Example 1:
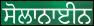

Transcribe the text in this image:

ਸੋਲਾਨਾਈਨ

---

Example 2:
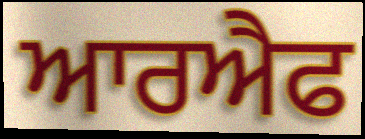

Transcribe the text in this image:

ਆਰਐਫ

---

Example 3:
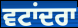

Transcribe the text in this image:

ਵਟਾਂਦਰਾ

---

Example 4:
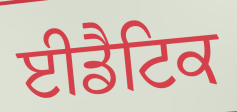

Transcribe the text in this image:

ਈਡੈਟਿਕ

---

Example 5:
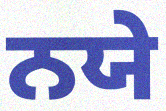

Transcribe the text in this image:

ਨਯੇ